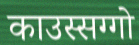
काउस्सग्गो